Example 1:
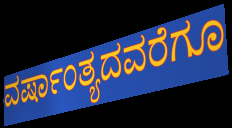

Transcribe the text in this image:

ವರ್ಷಾಂತ್ಯದವರೆಗೂ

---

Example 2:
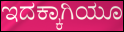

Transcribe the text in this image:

ಇದಕ್ಕಾಗಿಯೂ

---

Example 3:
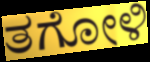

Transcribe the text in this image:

ತಗೋಳಿ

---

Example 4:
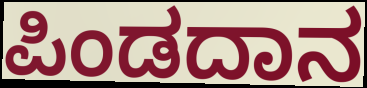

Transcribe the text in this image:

ಪಿಂಡದಾನ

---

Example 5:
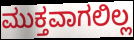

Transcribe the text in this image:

ಮುಕ್ತವಾಗಲಿಲ್ಲ